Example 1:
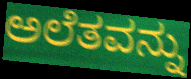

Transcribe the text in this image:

ಅಲೆತವನ್ನು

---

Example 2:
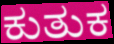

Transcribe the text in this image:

ಕುತುಕ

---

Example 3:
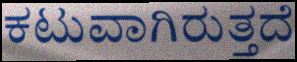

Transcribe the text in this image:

ಕಟುವಾಗಿರುತ್ತದೆ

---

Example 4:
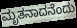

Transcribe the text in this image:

ಮೃತನಾದನೆಂದು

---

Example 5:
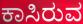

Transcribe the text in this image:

ಕಾಸಿರುವ